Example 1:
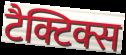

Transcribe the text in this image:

टैक्टिक्स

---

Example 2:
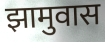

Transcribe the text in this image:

झामुवास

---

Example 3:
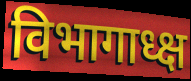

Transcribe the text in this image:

विभागाध्क्ष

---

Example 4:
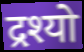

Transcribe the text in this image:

द्रश्यो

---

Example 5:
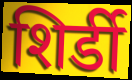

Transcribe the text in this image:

शिर्डी